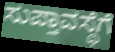
ಸುಪ್ತಾವಸ್ಥೆಗೆ